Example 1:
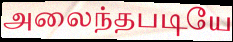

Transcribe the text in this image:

அலைந்தபடியே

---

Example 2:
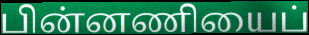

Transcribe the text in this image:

பின்னணியைப்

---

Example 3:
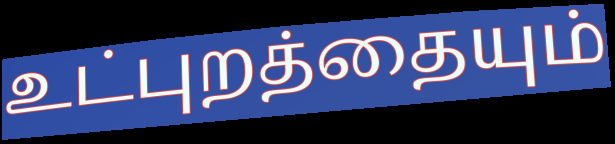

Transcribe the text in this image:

உட்புறத்தையும்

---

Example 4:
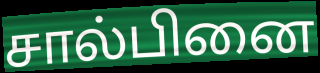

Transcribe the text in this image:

சால்பினை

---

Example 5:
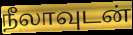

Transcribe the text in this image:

நீலாவுடன்